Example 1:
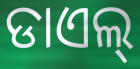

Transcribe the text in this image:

ଡାଏଲ୍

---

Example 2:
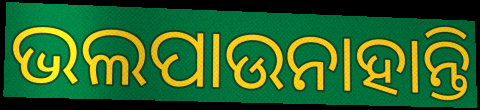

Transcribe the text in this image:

ଭଲପାଉନାହାନ୍ତି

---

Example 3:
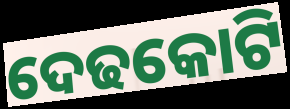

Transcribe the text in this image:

ଦେଢକୋଟି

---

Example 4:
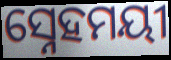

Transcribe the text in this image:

ସ୍ନେହମୟୀ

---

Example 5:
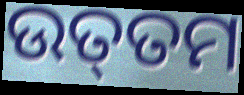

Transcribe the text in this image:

ଉତ୍‌ତମ